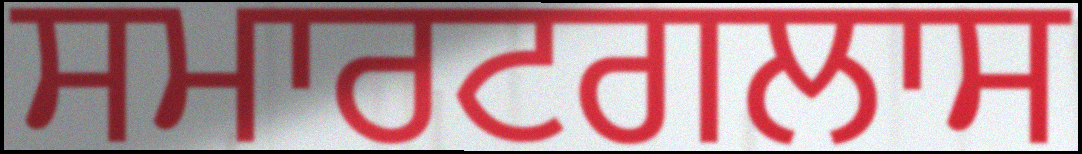
ਸਮਾਰਟਗਲਾਸ